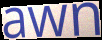
awn